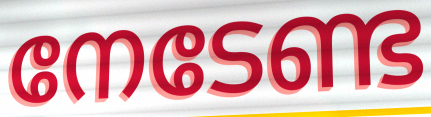
നേടേണ്ട